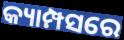
କ୍ୟାମ୍ପସରେ